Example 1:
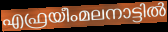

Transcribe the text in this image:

എഫ്രയീംമലനാട്ടിൽ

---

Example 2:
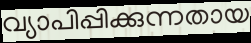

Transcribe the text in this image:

വ്യാപിപ്പിക്കുന്നതായ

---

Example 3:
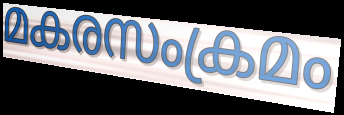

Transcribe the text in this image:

മകരസംക്രമം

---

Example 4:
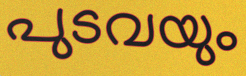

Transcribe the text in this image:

പുടവയും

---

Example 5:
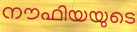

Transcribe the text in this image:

നൗഫിയയുടെ